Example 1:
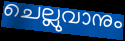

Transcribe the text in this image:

ചെല്ലുവാനും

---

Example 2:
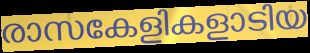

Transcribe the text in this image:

രാസകേളികളാടിയ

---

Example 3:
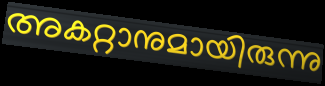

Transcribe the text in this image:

അകറ്റാനുമായിരുന്നു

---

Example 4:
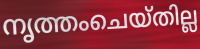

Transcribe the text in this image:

നൃത്തംചെയ്തില്ല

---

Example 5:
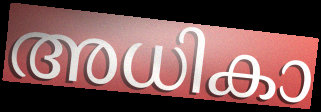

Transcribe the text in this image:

അധികാ